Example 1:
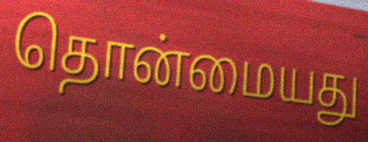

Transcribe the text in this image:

தொன்மையது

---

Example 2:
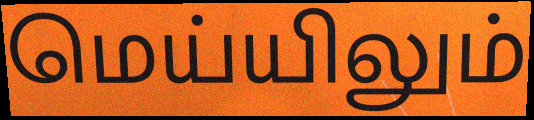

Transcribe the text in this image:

மெய்யிலும்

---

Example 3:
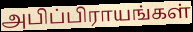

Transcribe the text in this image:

அபிப்பிராயங்கள்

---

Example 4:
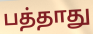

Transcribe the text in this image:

பத்தாது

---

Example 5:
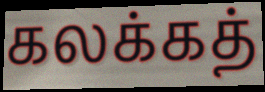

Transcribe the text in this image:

கலக்கத்